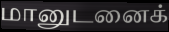
மானுடனைக்